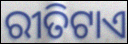
ରୀତିଟାଏ